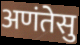
अणंतेसु